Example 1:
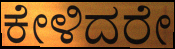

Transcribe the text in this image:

ಕೇಳಿದರೇ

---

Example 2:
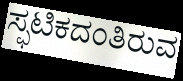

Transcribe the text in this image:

ಸ್ಫಟಿಕದಂತಿರುವ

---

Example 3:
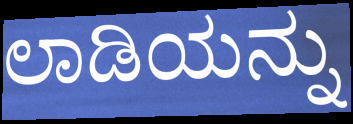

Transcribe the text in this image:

ಲಾಡಿಯನ್ನು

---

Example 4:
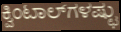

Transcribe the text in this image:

ಕ್ವಿಂಟಾಲ್‌ಗಳಷ್ಟು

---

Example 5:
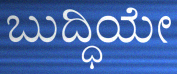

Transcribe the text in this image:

ಬುದ್ಧಿಯೇ